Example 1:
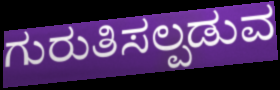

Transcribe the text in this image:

ಗುರುತಿಸಲ್ಪಡುವ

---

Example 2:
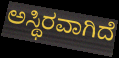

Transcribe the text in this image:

ಅಸ್ಥಿರವಾಗಿದೆ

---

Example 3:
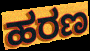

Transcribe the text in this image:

ಹರಣ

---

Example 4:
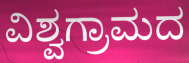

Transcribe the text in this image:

ವಿಶ್ವಗ್ರಾಮದ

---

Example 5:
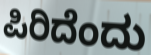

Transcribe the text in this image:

ಪಿರಿದೆಂದು